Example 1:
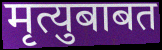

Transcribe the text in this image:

मृत्युबाबत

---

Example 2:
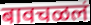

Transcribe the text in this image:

बावचळलं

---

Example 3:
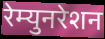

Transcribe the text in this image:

रेम्युनरेशन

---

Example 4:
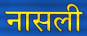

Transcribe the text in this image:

नासली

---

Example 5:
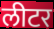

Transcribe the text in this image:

लीटर